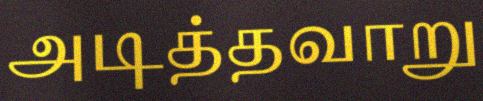
அடித்தவாறு